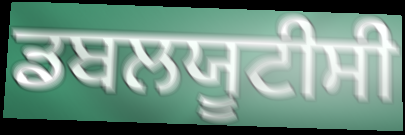
ਡਬਲਯੂਟੀਸੀ